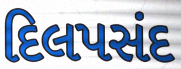
દિલપસંદ